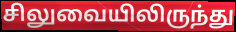
சிலுவையிலிருந்து